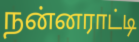
நன்னராட்டி